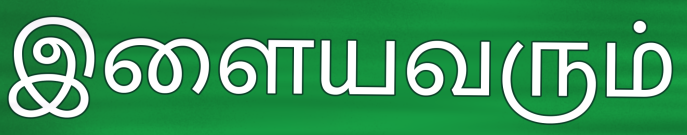
இளையவரும்